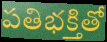
పతిభక్తితో